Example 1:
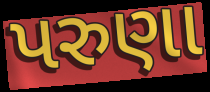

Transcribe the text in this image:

પરુણા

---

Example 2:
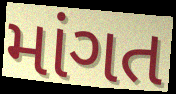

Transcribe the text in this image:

માંગત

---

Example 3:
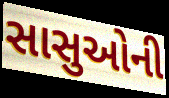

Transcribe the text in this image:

સાસુઓની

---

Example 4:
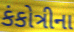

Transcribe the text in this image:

કંકોત્રીના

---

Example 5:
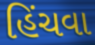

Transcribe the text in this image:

હિંચવા